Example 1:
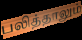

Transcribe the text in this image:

பலித்தாலும்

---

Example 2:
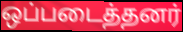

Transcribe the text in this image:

ஒப்படைத்தனர்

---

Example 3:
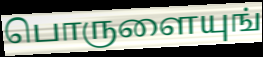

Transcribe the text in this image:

பொருளையுங்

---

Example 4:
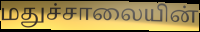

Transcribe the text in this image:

மதுச்சாலையின்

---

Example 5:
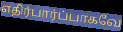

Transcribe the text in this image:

எதிர்பார்ப்பாகவே